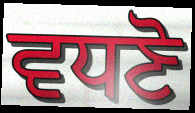
ਵਧਣੋ